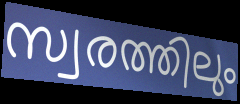
സ്വരത്തിലും